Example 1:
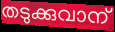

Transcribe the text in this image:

തടുക്കുവാന്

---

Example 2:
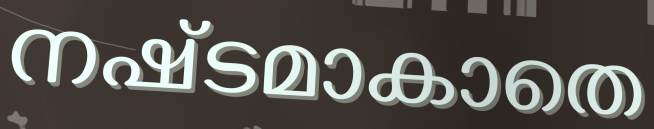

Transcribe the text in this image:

നഷ്‌ടമാകാതെ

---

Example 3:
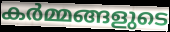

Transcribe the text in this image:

കർമ്മങ്ങളുടെ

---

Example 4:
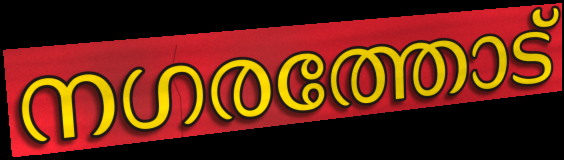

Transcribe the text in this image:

നഗരത്തോട്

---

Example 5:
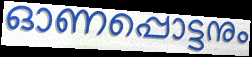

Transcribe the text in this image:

ഓണപ്പൊട്ടനും